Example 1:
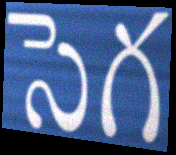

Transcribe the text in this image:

సెగ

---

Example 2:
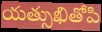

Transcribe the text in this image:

యత్సుఖితోపి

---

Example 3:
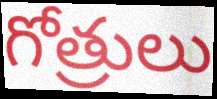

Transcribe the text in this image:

గోత్రులు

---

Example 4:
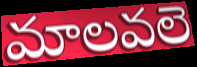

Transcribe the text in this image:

మాలవలె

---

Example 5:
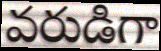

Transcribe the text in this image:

వరుడిగా